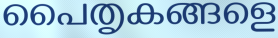
പൈതൃകങ്ങളെ